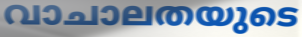
വാചാലതയുടെ